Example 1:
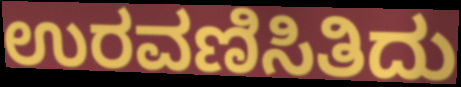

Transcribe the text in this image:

ಉರವಣಿಸಿತಿದು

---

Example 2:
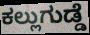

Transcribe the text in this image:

ಕಲ್ಲುಗುಡ್ಡೆ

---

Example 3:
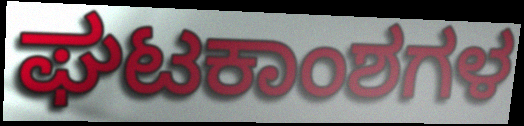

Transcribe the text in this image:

ಘಟಕಾಂಶಗಳ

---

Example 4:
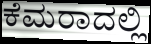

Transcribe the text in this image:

ಕೆಮರಾದಲ್ಲಿ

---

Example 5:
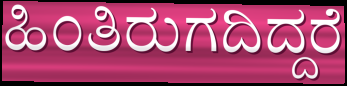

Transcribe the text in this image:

ಹಿಂತಿರುಗದಿದ್ದರೆ